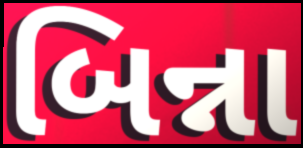
બિન્ના